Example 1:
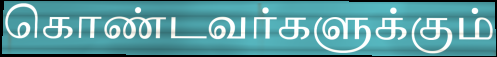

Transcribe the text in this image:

கொண்டவர்களுக்கும்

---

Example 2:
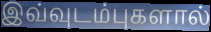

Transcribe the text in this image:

இவ்வுடம்புகளால்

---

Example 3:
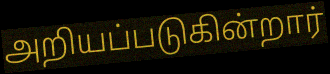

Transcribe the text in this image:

அறியப்படுகின்றார்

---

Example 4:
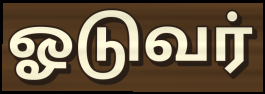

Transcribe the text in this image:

ஓடுவர்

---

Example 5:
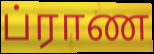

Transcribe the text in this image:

ப்ராண